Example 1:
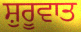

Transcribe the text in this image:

ਸ਼ੁਰੂਵਾਤ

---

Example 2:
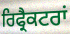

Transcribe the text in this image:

ਰਿਫ੍ਰੈਕਟਰਾਂ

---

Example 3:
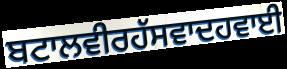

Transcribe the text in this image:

ਬਟਾਲਵੀਰਹੱਸਵਾਦਹਵਾਈ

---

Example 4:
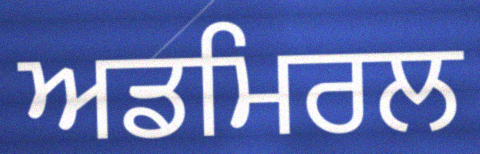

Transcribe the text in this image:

ਅਡਮਿਰਲ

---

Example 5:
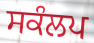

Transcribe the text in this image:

ਸਕੰਲਪ